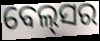
ବେଲ୍‌ସର